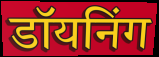
डॉयनिंग